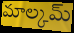
మాల్కమ్